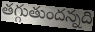
తగ్గుతుందన్నది